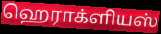
ஹெராக்ளியஸ்